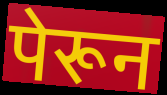
पेरून